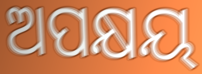
ଅପକ୍ଷୟ